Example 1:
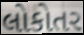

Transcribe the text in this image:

લોકોતર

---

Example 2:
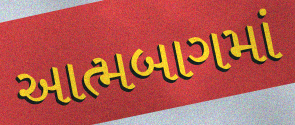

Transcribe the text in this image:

આત્મબાગમાં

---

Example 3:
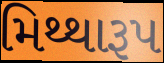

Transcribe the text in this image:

મિથ્થારૂપ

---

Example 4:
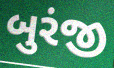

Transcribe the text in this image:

બુરંજી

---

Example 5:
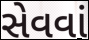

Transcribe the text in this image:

સેવવાં